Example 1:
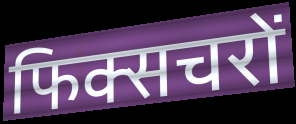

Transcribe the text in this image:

फिक्सचरों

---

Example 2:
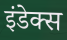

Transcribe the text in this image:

इंडेक्स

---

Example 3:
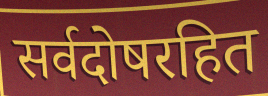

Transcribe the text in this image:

सर्वदोषरहित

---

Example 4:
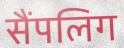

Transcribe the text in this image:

सैंपलिग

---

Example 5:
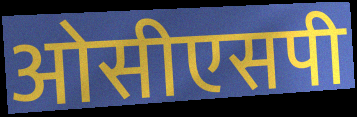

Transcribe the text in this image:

ओसीएसपी